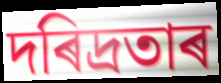
দৰিদ্ৰতাৰ